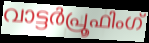
വാട്ടർപ്രൂഫിംഗ്